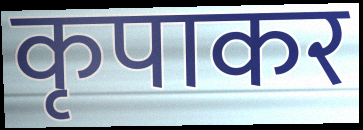
कृपाकर